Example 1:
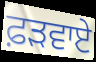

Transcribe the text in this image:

ਫ਼ੜਵਾਏ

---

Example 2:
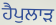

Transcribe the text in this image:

ਹੈਪੁਲਾੜ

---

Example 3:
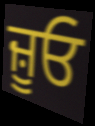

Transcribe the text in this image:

ਜ਼ੂਓ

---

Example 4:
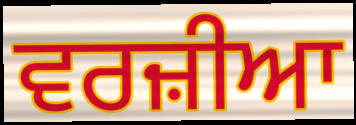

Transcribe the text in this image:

ਵਰਜ਼ੀਆ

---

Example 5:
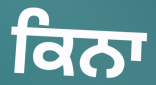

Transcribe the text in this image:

ਕਿਨਾ